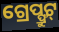
ଗ୍ରେପ୍ଫ୍ରୁଟ୍